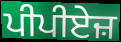
ਪੀਪੀਏਜ਼